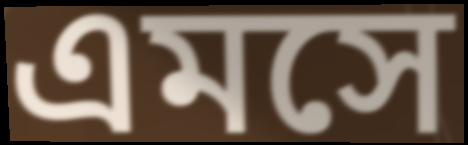
এমসে